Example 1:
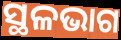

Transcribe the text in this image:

ସ୍ଥଳଭାଗ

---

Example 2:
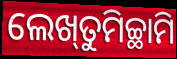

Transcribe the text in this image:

ଲେଖ୍‌ତୁମିଚ୍ଛାମି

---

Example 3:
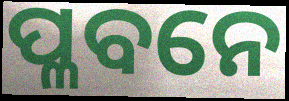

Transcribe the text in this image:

ପ୍ଳବନେ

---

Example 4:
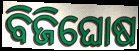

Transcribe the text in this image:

ବିଜିଘୋଷ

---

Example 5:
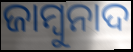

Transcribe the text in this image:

ଜାମ୍ବୁନାଦ